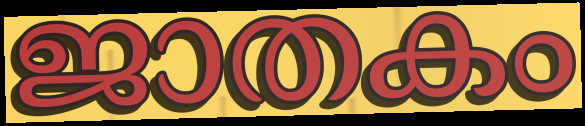
ജാതകം